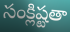
సంక్లిష్టతా